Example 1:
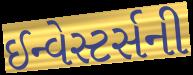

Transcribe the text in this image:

ઈન્વેસ્ટર્સની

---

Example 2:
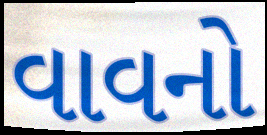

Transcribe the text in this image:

વાવનો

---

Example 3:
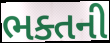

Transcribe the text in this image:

ભક્તની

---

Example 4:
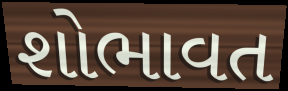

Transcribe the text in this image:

શોભાવત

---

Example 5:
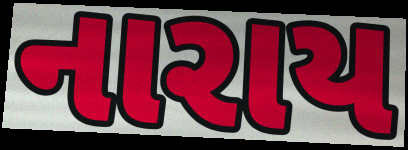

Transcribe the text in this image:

નારાય